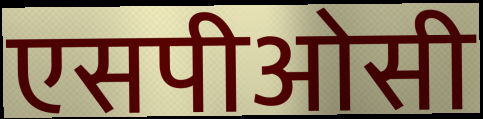
एसपीओसी